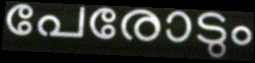
പേരോടും